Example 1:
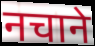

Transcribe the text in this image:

नचाने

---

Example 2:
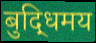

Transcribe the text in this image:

बुद्धिमय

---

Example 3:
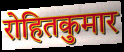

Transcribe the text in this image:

रोहितकुमार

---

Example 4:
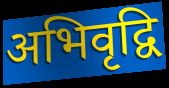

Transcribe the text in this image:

अभिवृद्वि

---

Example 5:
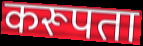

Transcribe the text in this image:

करूपता